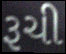
રૂચી